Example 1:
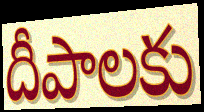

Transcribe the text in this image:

దీపాలకు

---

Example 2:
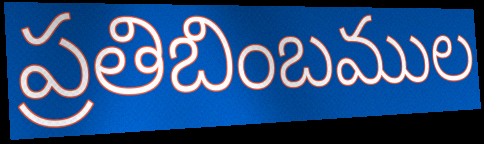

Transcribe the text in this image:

ప్రతిబింబముల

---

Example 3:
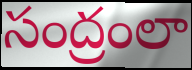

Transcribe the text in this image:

సంద్రంలా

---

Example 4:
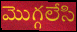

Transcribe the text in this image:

మొగ్గలేసి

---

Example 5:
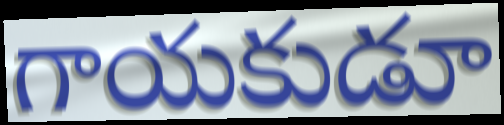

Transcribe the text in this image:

గాయకుడూ